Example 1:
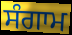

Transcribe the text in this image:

ਸੰਗਾਮ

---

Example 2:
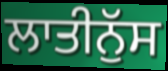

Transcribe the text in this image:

ਲਾਤੀਨੁੱਸ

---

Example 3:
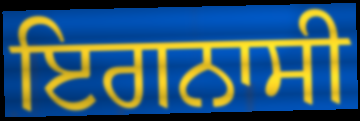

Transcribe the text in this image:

ਇਗਨਾਸੀ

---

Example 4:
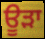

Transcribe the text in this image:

ਊੜਾ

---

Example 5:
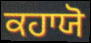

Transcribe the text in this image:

ਕਹਾਯੋ